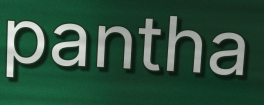
pantha